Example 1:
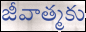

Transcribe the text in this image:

జీవాత్మకు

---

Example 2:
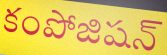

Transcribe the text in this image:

కంపోజిషన్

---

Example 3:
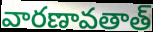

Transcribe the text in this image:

వారణావతాత్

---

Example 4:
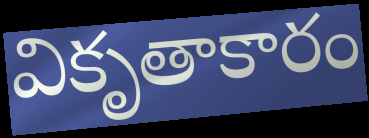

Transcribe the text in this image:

వికృతాకారం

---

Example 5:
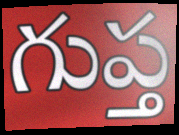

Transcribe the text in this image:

గుప్త